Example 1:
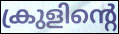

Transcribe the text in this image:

ക്രുളിന്റെ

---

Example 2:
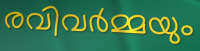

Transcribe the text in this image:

രവിവർമ്മയും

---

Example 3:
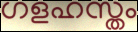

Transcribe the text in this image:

ഗളഹസ്തം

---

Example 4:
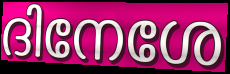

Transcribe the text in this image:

ദിനേശേ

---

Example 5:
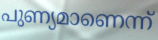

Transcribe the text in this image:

പുണ്യമാണെന്ന്